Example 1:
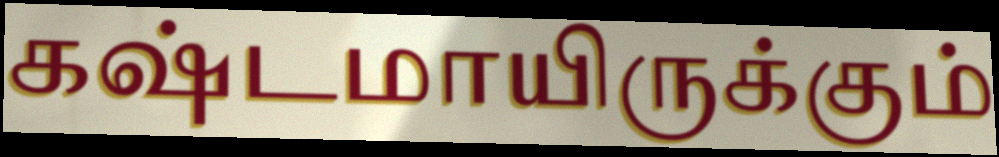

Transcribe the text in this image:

கஷ்டமாயிருக்கும்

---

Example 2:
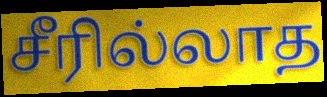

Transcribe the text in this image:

சீரில்லாத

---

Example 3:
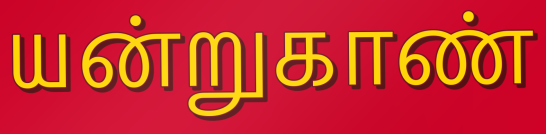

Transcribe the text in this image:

யன்றுகாண்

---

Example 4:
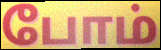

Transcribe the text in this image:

போம்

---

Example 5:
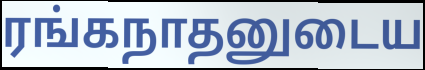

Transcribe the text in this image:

ரங்கநாதனுடைய